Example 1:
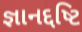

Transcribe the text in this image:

જ્ઞાનદ્દષ્ટિ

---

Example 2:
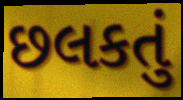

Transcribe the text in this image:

છલકતું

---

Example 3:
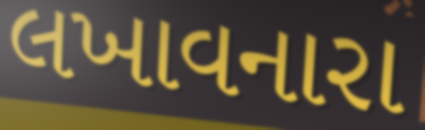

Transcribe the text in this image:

લખાવનારા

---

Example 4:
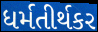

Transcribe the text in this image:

ધર્મતીર્થકર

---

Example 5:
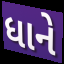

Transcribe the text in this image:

ધાને